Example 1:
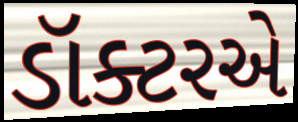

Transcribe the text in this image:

ડૉક્ટરએ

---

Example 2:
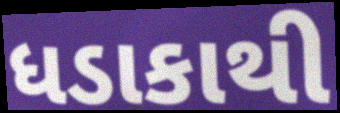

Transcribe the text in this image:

ધડાકાથી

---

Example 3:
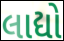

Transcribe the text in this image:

લાદ્યો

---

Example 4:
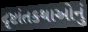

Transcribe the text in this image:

દૃષ્ટાંતકથાઓનું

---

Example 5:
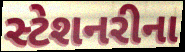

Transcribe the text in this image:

સ્ટેશનરીના